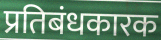
प्रतिबंधकारक